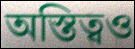
অস্তিত্বও